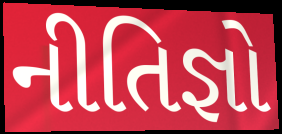
નીતિજ્ઞો